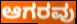
ಆಗರವು